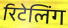
रिटेलिंग